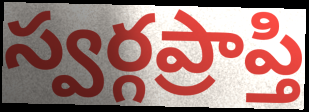
స్వర్గప్రాప్తి